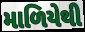
માળિયેથી